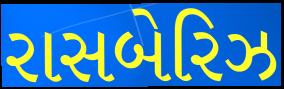
રાસબેરિઝ